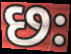
છઃ